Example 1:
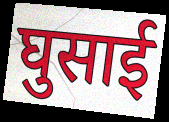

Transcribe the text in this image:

घुसाई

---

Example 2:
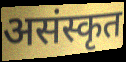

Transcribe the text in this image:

असंस्कृत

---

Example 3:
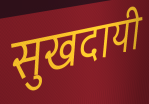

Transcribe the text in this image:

सुखदायी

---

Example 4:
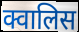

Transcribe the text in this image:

क्वालिस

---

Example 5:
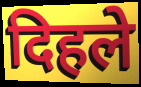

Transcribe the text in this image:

दिहले